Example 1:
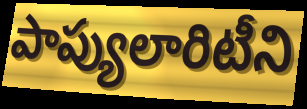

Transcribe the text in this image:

పాప్యులారిటీని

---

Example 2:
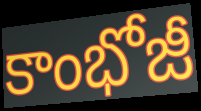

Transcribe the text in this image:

కాంభోజీ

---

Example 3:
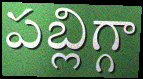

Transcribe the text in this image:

పబ్లిగ్గా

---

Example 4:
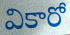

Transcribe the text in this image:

వికారో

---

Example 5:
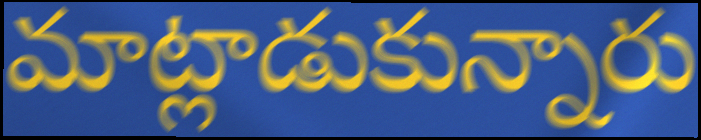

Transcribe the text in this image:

మాట్లాడుకున్నారు